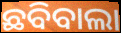
ଛବିବାଲା